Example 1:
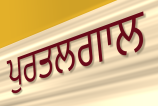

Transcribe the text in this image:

ਪੁਰਤਲਗਾਲ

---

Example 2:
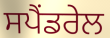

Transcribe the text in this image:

ਸਪੈਂਡਰੇਲ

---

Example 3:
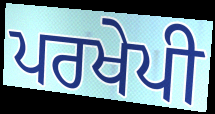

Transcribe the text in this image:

ਪਰਖੇਪੀ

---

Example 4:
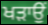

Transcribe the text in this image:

ਖੜਾਉਂ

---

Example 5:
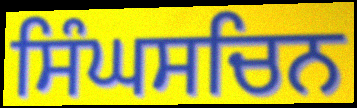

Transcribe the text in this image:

ਸਿੰਘਸਚਿਨ